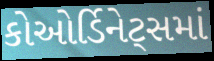
કોઓર્ડિનેટ્સમાં